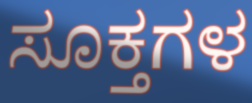
ಸೂಕ್ತಗಳ